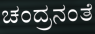
ಚಂದ್ರನಂತೆ